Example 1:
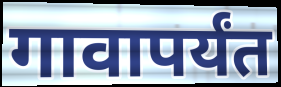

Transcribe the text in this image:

गावापर्यंत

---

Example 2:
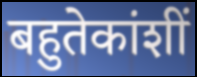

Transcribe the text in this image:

बहुतेकांशीं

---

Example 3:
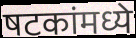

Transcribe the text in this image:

षटकांमध्ये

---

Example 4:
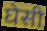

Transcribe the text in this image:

घेसी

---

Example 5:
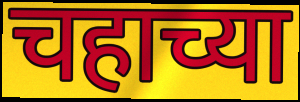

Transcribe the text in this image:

चहाच्या